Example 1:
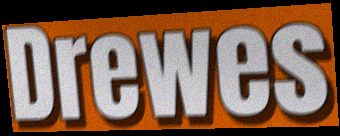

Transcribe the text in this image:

Drewes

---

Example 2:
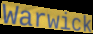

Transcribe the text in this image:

Warwick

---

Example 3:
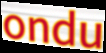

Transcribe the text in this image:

ondu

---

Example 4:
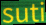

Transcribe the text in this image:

suti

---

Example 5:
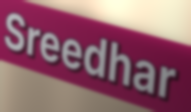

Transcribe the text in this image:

Sreedhar